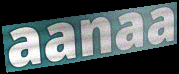
aanaa